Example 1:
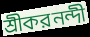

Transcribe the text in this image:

শ্রীকরনন্দী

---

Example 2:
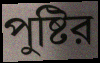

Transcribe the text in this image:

পুষ্টির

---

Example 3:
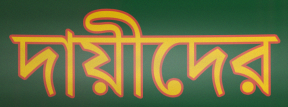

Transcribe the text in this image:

দায়ীদের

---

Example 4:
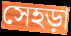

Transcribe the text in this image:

সেহড়া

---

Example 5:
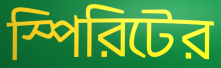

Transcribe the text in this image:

স্পিরিটের